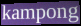
kampong